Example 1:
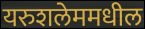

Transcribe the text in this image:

यरुशलेममधील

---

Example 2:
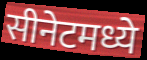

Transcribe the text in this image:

सीनेटमध्ये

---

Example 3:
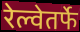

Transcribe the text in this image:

रेल्वेतर्फे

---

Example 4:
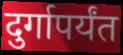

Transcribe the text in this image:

दुर्गापर्यंत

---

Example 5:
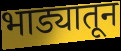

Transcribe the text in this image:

भाड्यातून